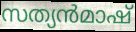
സത്യൻമാഷ്